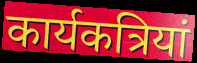
कार्यकत्रियां